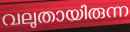
വലുതായിരുന്ന